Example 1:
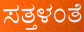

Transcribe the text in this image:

ಸತ್ತಳಂತೆ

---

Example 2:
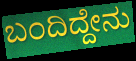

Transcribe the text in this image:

ಬಂದಿದ್ದೇನು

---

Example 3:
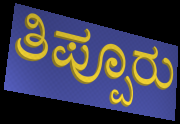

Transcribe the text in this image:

ತಿಪ್ಪೂರು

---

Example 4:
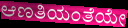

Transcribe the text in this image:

ಆಣತಿಯಂತೆಯೇ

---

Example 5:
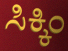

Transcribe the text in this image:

ಸಿಕ್ಕಿಂ